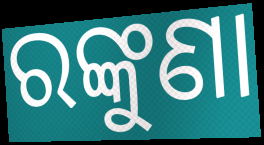
ରଙ୍କୁଣା